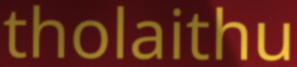
tholaithu